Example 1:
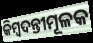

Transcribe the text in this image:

କିମ୍ବଦନ୍ତୀମୂଳକ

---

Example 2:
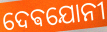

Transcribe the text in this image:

ଦେଵଯୋନୀ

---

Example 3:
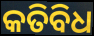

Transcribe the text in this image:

କତିବିଧ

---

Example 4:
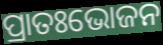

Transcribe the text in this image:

ପ୍ରାତଃଭୋଜନ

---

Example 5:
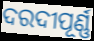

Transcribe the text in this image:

ଦରଦୀପୂର୍ଣ୍ଣ